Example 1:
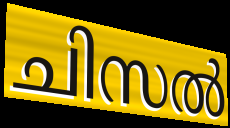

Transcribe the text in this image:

ചിസൽ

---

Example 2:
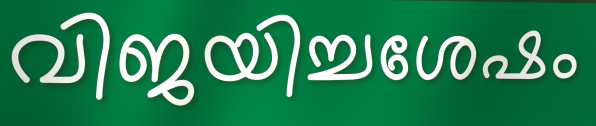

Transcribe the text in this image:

വിജയിച്ചശേഷം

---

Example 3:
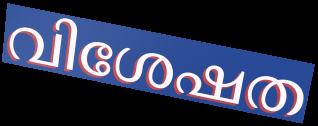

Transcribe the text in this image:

വിശേഷത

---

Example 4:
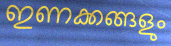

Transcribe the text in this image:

ഇണക്കങ്ങളും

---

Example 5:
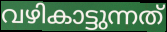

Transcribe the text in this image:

വഴികാട്ടുന്നത്